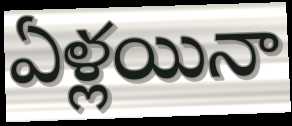
ఏళ్లయినా